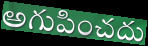
అగుపించదు